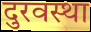
दुरवस्था